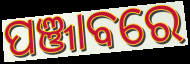
ପଞ୍ଜାବରେ